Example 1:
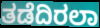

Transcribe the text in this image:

ತಡೆದಿರಲಾ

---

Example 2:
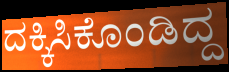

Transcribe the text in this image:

ದಕ್ಕಿಸಿಕೊಂಡಿದ್ದ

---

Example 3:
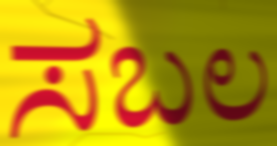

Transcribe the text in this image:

ಸಬಲ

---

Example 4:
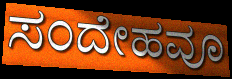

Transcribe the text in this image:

ಸಂದೇಹವೂ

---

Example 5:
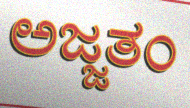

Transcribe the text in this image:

ಅಜ್ಜತಂ